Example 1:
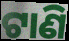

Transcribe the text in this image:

ଟାଣି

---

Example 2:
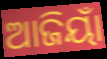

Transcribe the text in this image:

ଆଜିୟାଁ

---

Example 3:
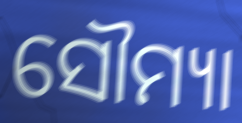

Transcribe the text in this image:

ସୌମ୍ୟା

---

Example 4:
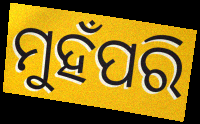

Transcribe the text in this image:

ମୁହଁପରି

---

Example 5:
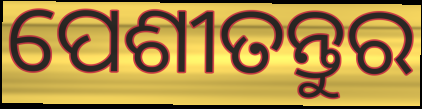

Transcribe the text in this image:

ପେଶୀତନ୍ତୁର